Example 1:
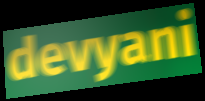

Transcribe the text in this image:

devyani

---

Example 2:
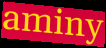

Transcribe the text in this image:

aminy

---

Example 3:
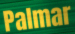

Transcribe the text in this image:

Palmar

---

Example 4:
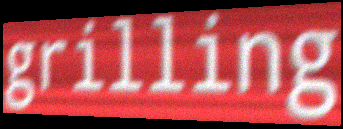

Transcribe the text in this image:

grilling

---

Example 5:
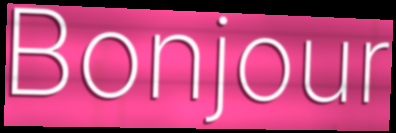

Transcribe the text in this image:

Bonjour